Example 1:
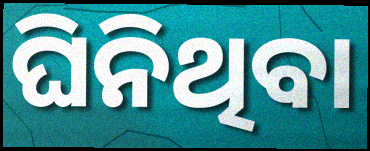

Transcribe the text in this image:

ଘିନିଥିବା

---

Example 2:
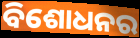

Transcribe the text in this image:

ବିଶୋଧନର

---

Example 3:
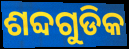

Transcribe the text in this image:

ଶବ୍ଦଗୁଡିକ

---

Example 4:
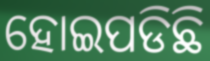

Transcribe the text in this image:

ହୋଇପଡିଛି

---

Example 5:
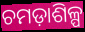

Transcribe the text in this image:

ଚମଡ଼ାଶିଳ୍ପ